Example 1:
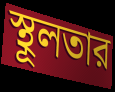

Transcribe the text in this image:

স্থূলতার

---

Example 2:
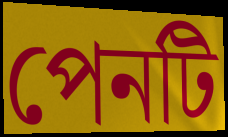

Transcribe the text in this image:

পেনটি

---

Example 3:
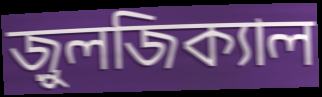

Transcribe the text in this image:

জ়ুলজিক্যাল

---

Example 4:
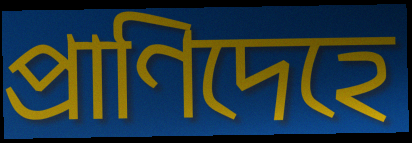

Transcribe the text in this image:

প্রাণিদেহে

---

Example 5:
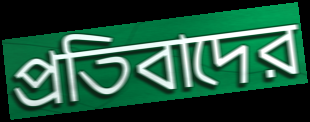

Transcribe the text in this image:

প্রতিবাদের